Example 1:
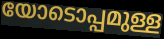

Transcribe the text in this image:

യോടൊപ്പമുള്ള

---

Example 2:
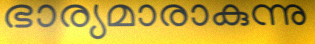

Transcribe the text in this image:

ഭാര്യമാരാകുന്നു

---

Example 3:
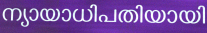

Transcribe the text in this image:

ന്യായാധിപതിയായി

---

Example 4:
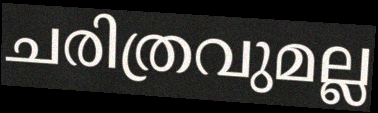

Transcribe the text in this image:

ചരിത്രവുമല്ല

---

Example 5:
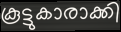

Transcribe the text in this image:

കൂട്ടുകാരാക്കി